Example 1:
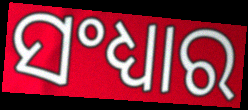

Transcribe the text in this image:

ସଂଧ୍ୟାର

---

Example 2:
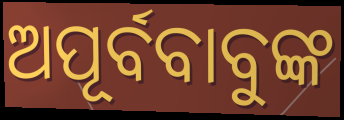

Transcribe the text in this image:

ଅପୂର୍ବବାବୁଙ୍କ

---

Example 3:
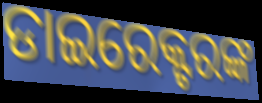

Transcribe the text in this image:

ଡାଇରେକ୍ଟରଙ୍କ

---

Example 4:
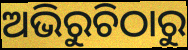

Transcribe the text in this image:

ଅଭିରୁଚିଠାରୁ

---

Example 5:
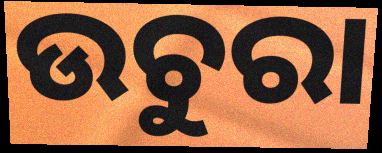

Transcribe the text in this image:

ଉଚୁରା